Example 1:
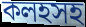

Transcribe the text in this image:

কলহসহ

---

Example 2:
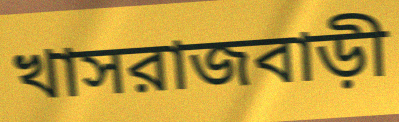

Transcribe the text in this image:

খাসরাজবাড়ী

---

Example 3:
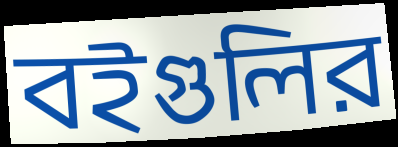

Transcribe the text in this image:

বইগুলির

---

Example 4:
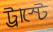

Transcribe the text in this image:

ট্রাস্টে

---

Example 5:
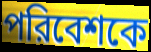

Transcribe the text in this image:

পরিবেশকে